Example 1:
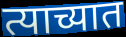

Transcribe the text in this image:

त्याच्यात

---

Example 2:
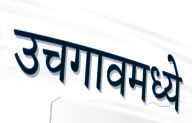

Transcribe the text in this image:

उचगावमध्ये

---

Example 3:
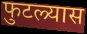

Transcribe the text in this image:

फुटल्यास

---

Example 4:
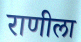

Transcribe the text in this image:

राणीला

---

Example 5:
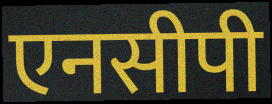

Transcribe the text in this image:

एनसीपी